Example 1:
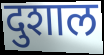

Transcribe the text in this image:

दुशाल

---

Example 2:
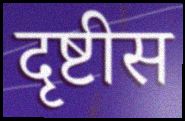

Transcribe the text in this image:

दृष्टीस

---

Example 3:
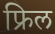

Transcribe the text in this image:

फ्रिल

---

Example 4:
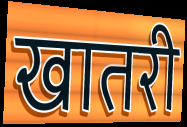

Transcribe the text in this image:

खातरी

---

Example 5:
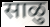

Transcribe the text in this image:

साळु